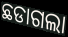
ଛଡାଗଲା